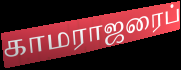
காமராஜரைப்